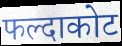
फल्दाकोट